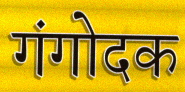
गंगोदक